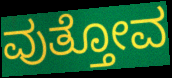
ವುತ್ತೋವ